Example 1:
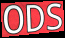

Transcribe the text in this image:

ODS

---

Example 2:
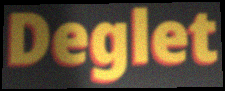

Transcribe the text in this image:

Deglet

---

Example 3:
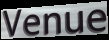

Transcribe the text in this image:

Venue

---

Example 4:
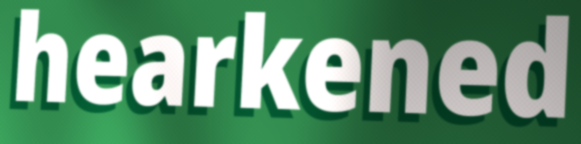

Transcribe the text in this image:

hearkened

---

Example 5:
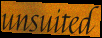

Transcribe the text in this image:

unsuited